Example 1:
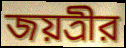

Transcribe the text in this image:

জয়ত্রীর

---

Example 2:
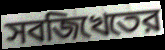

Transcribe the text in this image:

সবজিখেতের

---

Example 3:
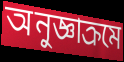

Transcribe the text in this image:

অনুজ্ঞাক্রমে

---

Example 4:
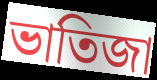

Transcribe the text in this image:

ভাতিজা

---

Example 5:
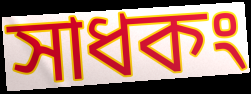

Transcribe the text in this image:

সাধকং